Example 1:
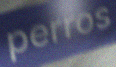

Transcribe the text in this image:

perros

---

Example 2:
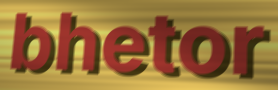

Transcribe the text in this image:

bhetor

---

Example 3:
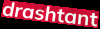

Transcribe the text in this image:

drashtant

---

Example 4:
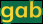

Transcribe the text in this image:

gab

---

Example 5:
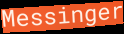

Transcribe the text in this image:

Messinger